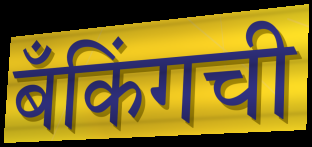
बँकिंगची